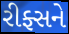
રીફ્સને